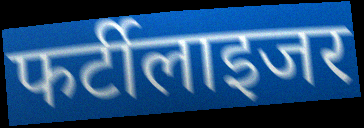
फर्टीलाइजर